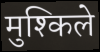
मुश्किले